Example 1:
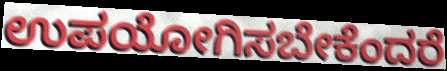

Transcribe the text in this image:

ಉಪಯೋಗಿಸಬೇಕೆಂದರೆ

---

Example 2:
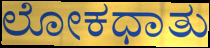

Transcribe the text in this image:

ಲೋಕಧಾತು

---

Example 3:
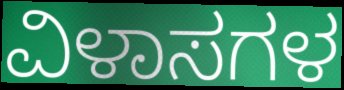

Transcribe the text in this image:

ವಿಳಾಸಗಳ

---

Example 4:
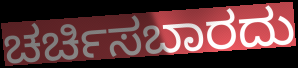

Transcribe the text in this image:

ಚರ್ಚಿಸಬಾರದು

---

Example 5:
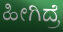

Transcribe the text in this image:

ಹೀಗಿದ್ರೆ